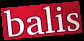
balis